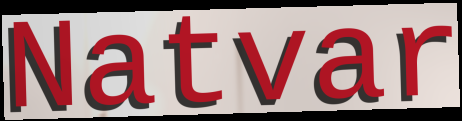
Natvar